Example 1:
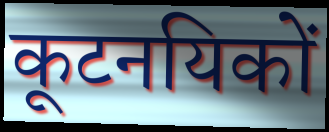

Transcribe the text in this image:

कूटनयिकों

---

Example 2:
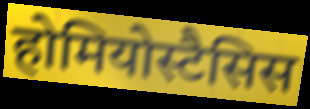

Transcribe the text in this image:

होमियोस्टैसिस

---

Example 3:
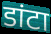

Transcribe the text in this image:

डांटा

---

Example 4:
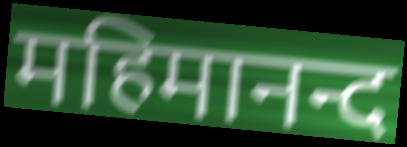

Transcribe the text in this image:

महिमानन्द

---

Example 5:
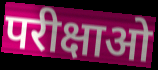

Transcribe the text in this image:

परीक्षाओ